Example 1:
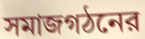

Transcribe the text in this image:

সমাজগঠনের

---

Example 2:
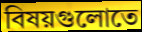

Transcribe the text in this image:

বিষয়গুলোতে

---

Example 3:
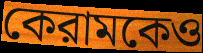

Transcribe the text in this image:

কেরামকেও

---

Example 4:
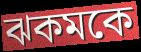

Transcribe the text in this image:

ঝকমকে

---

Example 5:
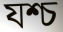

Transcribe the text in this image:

যশ্চ